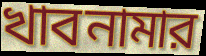
খাবনামার